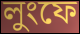
লুংফে